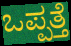
ಒಪ್ಪತ್ತೆ